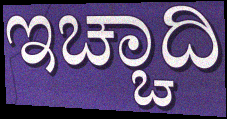
ಇಚ್ಚಾದಿ